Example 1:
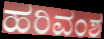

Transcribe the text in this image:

ಹರಿವಂಶ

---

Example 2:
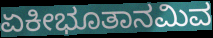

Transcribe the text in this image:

ಏಕೀಭೂತಾನಮಿವ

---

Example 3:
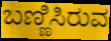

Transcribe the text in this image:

ಬಣ್ಣಿಸಿರುವ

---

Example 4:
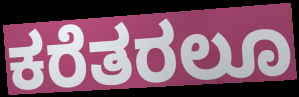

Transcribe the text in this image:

ಕರೆತರಲೂ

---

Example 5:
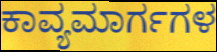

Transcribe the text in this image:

ಕಾವ್ಯಮಾರ್ಗಗಳ